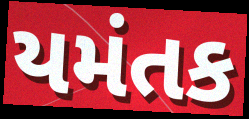
યમંતક